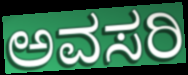
ಅವಸರಿ